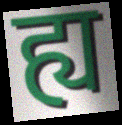
ह्य